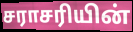
சராசரியின்